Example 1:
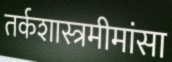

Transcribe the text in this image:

तर्कशास्त्रमीमांसा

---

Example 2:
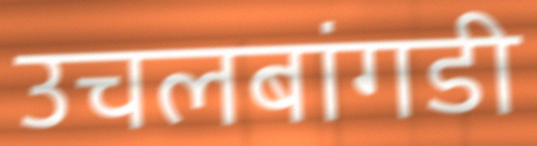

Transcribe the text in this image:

उचलबांगडी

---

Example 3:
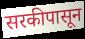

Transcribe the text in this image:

सरकीपासून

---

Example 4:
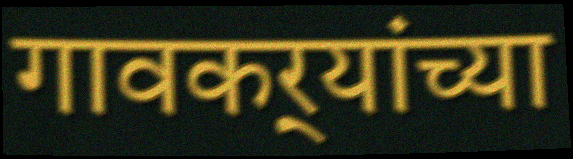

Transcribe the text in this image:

गावकर्यांच्या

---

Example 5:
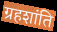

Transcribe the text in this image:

ग्रहशांति